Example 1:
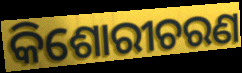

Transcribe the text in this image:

କିଶୋରୀଚରଣ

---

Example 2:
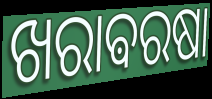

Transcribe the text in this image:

ଖରାଵରଷା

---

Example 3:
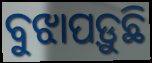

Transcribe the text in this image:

ବୁଝାପଡ଼ୁଛି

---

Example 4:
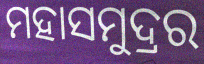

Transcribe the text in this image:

ମହାସମୁଦ୍ରର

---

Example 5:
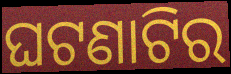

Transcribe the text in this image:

ଘଟଣାଟିର